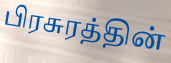
பிரசுரத்தின்